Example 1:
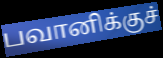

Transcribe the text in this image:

பவானிக்குச்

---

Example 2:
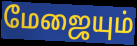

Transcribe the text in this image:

மேஜையும்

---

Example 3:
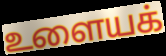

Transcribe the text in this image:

உளையக்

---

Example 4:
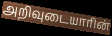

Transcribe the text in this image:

அறிவுடையாரின்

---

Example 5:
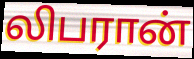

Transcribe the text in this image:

லிபரான்